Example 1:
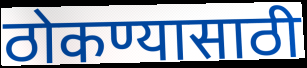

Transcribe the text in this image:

ठोकण्यासाठी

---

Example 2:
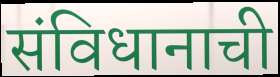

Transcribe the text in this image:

संविधानाची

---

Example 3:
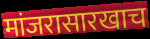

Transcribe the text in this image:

मांजरासारखाच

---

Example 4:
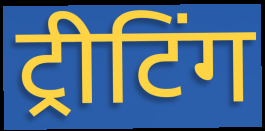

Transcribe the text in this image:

ट्रीटिंग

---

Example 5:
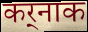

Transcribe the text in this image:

कर्नाक